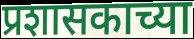
प्रशासकाच्या